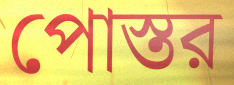
পোস্তর